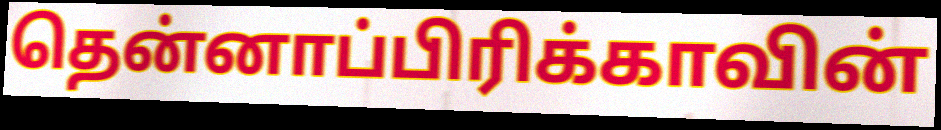
தென்னாப்பிரிக்காவின்